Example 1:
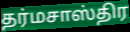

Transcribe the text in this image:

தர்மசாஸ்திர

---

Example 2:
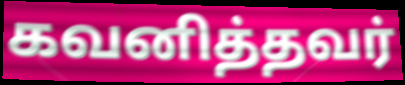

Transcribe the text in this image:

கவனித்தவர்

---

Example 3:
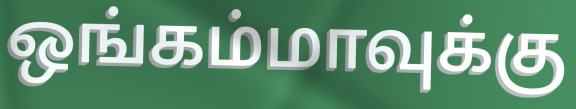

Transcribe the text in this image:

ஒங்கம்மாவுக்கு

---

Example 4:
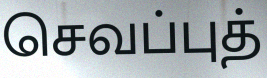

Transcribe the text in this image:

செவப்புத்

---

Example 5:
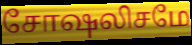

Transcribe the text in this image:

சோஷலிசமே